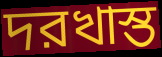
দরখাস্ত